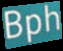
Bph